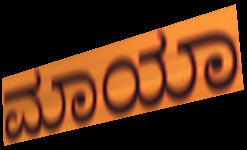
ಮಾಯಾ